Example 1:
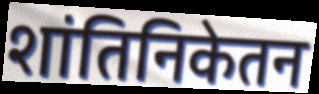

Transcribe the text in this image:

शांतिनिकेतन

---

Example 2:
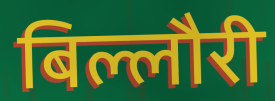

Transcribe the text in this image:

बिल्लौरी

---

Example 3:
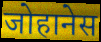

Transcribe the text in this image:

जोहानेस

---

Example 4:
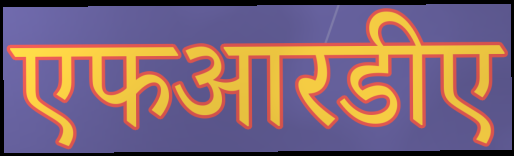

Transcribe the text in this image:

एफआरडीए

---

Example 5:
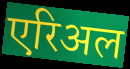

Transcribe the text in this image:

एरिअल